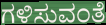
ಗಳಿಸುವಂತೆ